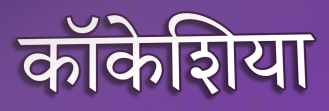
कॉकेशिया